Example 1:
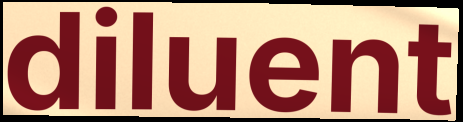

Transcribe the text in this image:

diluent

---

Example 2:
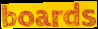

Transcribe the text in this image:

boards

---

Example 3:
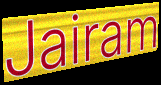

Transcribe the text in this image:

Jairam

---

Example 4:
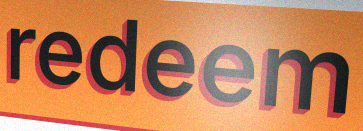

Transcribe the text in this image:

redeem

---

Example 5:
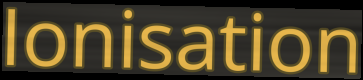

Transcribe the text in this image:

Ionisation